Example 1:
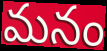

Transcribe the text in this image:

మనం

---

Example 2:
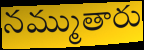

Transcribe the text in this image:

నమ్ముతారు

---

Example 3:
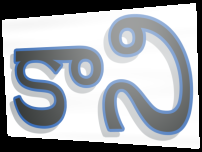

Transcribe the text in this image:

కాని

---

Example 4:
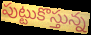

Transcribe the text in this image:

పుట్టుకొస్తున్న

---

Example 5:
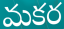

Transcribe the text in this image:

మకర